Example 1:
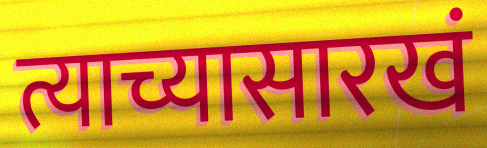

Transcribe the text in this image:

त्याच्यासारखं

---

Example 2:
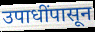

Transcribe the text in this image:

उपाधींपासून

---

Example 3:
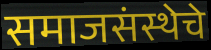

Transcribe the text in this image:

समाजसंस्थेचे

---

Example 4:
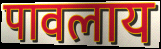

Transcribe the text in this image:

पावलाय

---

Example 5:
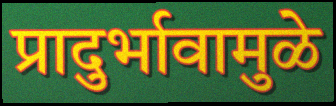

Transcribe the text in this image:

प्रादुर्भावामुळे